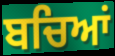
ਬਚਿਆਂ